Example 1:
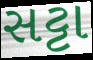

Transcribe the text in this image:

સટ્ટા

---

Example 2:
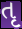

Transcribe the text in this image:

તૃ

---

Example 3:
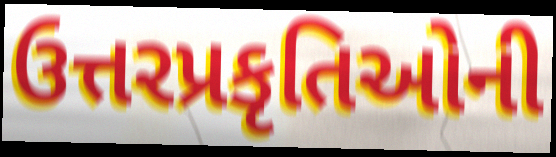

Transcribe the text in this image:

ઉત્તરપ્રકૃતિઓની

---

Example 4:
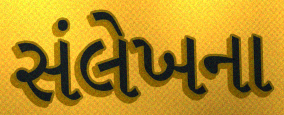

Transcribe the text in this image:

સંલેખના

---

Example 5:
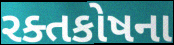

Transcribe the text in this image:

રક્તકોષના